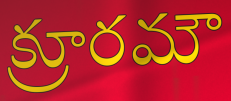
క్రూరమౌ